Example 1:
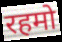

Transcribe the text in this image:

रहमो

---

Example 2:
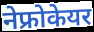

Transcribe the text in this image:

नेफ्रोकेयर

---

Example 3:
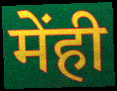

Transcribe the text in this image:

मेंही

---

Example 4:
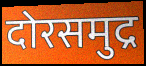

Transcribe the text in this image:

दोरसमुद्र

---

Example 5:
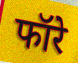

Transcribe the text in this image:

फॉरे